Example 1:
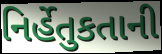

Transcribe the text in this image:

નિર્હેતુકતાની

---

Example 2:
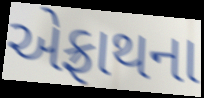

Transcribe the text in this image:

એફ્રાથના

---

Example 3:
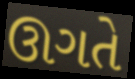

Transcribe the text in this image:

ઊગતે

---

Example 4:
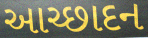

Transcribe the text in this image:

આચ્છાદન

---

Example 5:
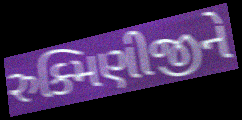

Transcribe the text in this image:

રુક્મિણીજીને